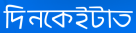
দিনকেইটাত